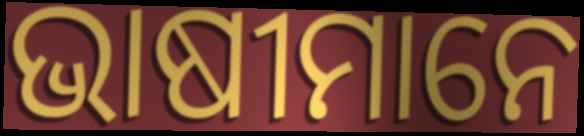
ଭାଷୀମାନେ